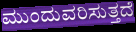
ಮುಂದುವರಿಸುತ್ತದೆ